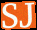
SJ